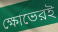
ক্ষোভেরই